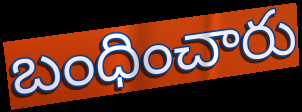
బంధించారు